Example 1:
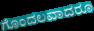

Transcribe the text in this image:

ಗೊಂದಲವಾದರೂ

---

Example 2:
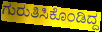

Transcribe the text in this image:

ಗುರುತಿಸಿಕೊಂಡಿದ್ದ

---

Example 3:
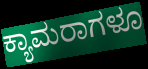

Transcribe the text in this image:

ಕ್ಯಾಮರಾಗಳೂ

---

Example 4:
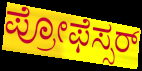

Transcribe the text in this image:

ಪ್ರೋಫೆಸ್ಸರ್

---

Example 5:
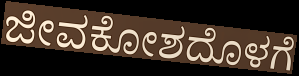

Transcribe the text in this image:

ಜೀವಕೋಶದೊಳಗೆ